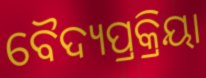
ବୈଦ୍ୟପ୍ରକ୍ରିୟା